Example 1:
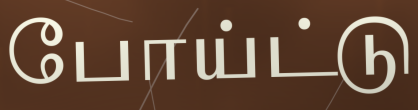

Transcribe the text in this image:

போய்ட்டு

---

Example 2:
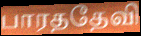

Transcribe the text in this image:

பாரததேவி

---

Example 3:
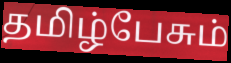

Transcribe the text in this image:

தமிழ்பேசும்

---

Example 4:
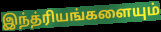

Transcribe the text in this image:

இந்த்ரியங்களையும்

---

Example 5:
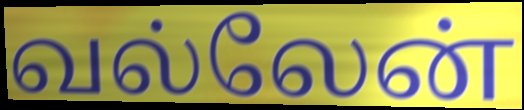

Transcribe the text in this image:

வல்லேன்